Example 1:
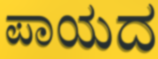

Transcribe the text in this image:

ಪಾಯದ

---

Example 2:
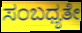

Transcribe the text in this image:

ಸಂಬಧ್ಯತೇ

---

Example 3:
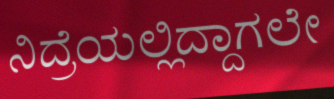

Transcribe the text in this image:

ನಿದ್ರೆಯಲ್ಲಿದ್ದಾಗಲೇ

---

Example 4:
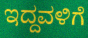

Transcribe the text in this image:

ಇದ್ದವಳಿಗೆ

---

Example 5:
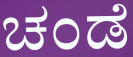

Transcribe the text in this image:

ಚಂಡೆ